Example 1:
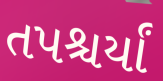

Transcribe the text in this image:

તપશ્ચર્યાં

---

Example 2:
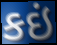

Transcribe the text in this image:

કઇં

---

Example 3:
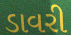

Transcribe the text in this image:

ડાવરી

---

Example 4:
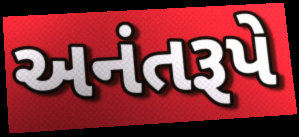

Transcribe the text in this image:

અનંતરૂપે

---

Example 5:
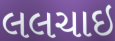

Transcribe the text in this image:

લલચાઇ